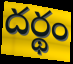
దర్థం